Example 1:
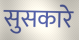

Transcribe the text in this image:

सुसकारे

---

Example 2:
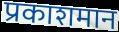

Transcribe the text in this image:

प्रकाशमान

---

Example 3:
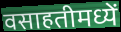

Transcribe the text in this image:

वसाहतीमध्यें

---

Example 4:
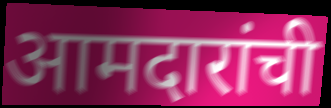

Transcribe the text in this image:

आमदारांची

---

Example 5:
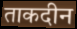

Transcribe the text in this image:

ताकदीन